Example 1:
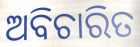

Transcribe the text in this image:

ଅବିଚାରିତ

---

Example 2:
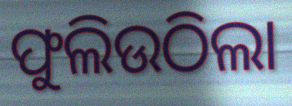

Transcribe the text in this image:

ଫୁଲିଉଠିଲା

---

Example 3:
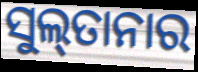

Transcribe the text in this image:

ସୁଲ୍‌ତାନାର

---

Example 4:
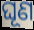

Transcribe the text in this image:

ଘୂଣ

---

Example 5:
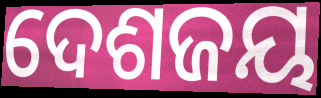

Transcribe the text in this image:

ଦେଶଜୟ